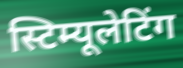
स्टिम्यूलेटिंग